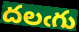
దలఁగు